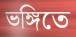
ভঙ্গিতে